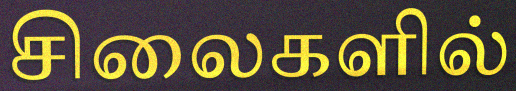
சிலைகளில்